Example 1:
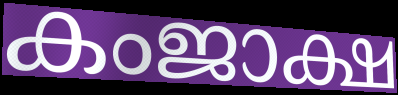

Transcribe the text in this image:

കംജാക്ഷ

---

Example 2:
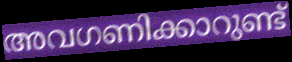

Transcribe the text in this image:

അവഗണിക്കാറുണ്ട്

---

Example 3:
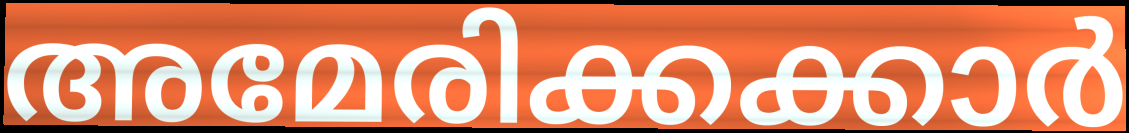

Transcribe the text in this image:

അമേരിക്കക്കാർ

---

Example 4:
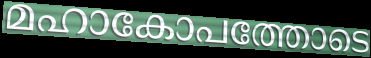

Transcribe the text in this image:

മഹാകോപത്തോടെ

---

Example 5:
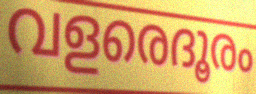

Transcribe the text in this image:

വളരെദൂരം